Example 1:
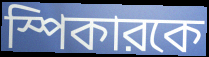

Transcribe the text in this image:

স্পিকারকে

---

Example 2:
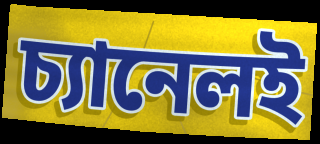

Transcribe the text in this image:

চ্যানেলই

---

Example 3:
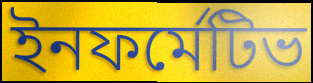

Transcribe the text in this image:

ইনফর্মেটিভ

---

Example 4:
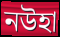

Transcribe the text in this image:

নউহা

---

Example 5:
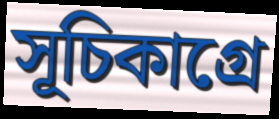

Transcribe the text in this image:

সূচিকাগ্রে